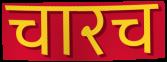
चारच